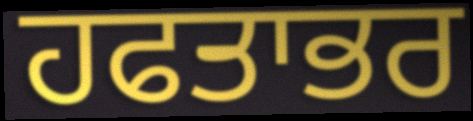
ਹਫਤਾਭਰ